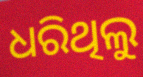
ଧରିଥିଲୁ